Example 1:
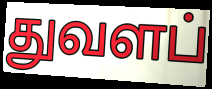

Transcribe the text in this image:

துவளப்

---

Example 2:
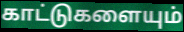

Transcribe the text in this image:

காட்டுகளையும்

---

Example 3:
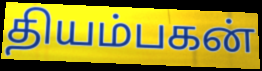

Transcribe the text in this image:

தியம்பகன்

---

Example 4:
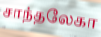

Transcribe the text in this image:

சாந்தலேகா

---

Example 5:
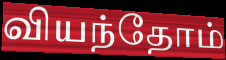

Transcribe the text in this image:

வியந்தோம்